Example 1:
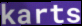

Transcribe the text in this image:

karts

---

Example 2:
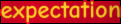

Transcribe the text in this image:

expectation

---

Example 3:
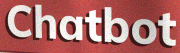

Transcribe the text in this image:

Chatbot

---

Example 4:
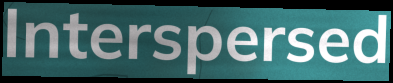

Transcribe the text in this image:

Interspersed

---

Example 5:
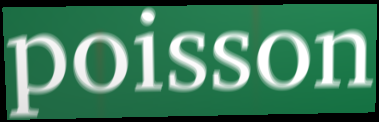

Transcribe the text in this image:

poisson